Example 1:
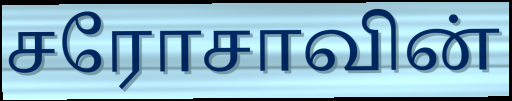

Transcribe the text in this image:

சரோசாவின்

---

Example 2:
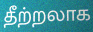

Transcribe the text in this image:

தீற்றலாக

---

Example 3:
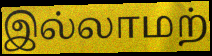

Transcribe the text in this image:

இல்லாமற்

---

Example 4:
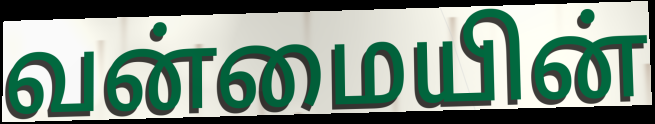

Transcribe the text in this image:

வன்மையின்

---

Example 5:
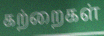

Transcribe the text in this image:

கற்றைகள்